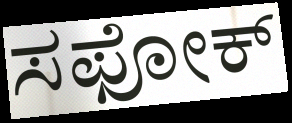
ಸಫೋಕ್